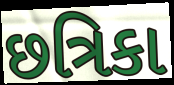
છત્રિકા